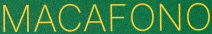
MACAFONO